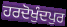
ਹਰਦੋਖੁੰਦਪੁਰ